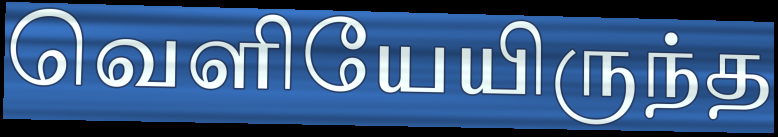
வெளியேயிருந்த